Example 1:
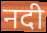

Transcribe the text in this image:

नदी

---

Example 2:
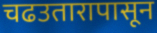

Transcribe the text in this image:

चढउतारापासून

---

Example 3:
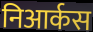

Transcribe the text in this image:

निआर्कस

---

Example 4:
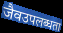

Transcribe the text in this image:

जैवउपलब्धता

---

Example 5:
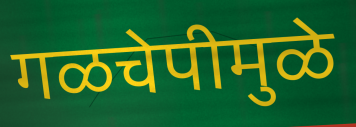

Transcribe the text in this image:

गळचेपीमुळे